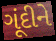
ગૂંદીને